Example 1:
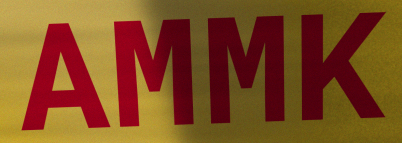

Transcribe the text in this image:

AMMK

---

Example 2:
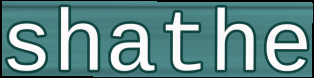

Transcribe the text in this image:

shathe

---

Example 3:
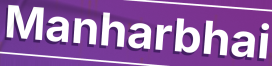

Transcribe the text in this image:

Manharbhai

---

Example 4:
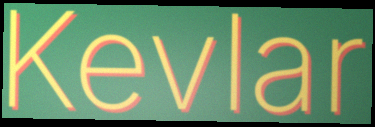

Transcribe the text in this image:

Kevlar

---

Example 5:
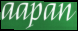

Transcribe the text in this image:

aapan